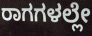
ರಾಗಗಳಲ್ಲೇ